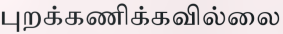
புறக்கணிக்கவில்லை